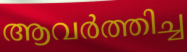
ആവർത്തിച്ച